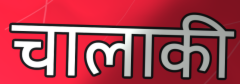
चालाकी